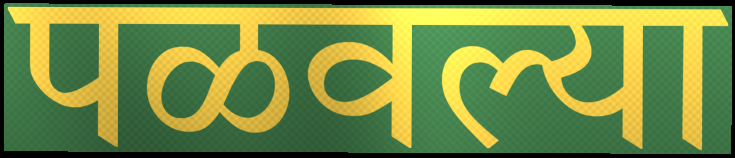
पळवल्या